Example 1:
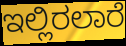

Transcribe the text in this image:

ಇಲ್ಲಿರಲಾರೆ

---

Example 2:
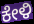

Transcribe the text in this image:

ಕೇಳಿ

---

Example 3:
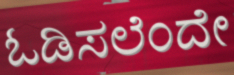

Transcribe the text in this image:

ಓಡಿಸಲೆಂದೇ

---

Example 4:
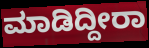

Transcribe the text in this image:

ಮಾಡಿದ್ದೀರಾ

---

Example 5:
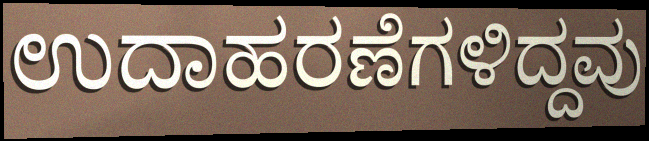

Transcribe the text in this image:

ಉದಾಹರಣೆಗಳಿದ್ದವು